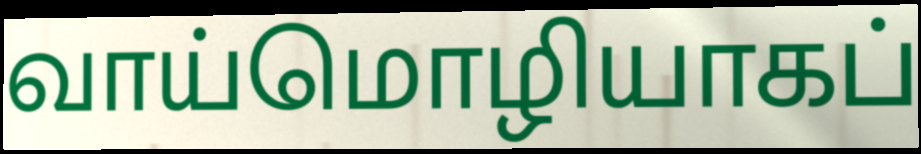
வாய்மொழியாகப்